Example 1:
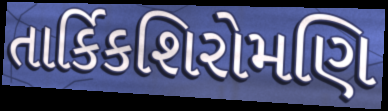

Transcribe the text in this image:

તાર્કિકશિરોમણિ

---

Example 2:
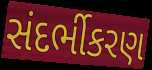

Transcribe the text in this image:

સંદર્ભીકરણ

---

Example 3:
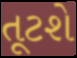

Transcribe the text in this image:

તૂટશે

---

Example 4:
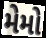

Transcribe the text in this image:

મેમો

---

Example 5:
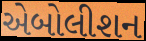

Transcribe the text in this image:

એબોલીશન